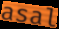
asal